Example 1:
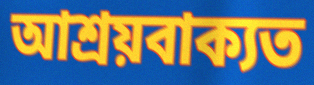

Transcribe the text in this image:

আশ্ৰয়বাক্যত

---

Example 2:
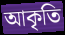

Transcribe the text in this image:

আকৃতি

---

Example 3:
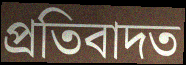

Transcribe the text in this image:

প্ৰতিবাদত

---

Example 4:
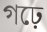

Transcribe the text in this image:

গঢ়ে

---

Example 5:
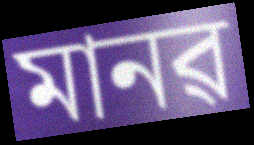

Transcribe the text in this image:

মানৱ